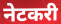
नेटकरी